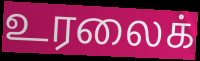
உரலைக்